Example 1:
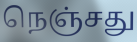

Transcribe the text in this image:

நெஞ்சது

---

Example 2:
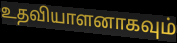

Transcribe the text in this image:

உதவியாளனாகவும்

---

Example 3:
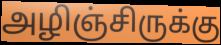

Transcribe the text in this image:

அழிஞ்சிருக்கு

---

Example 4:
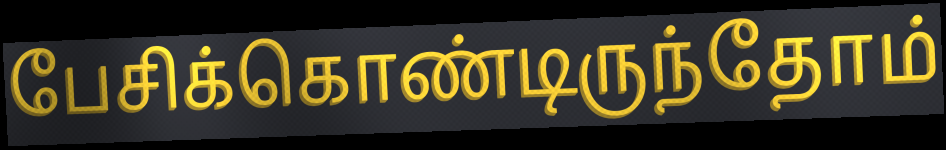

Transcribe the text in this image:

பேசிக்கொண்டிருந்தோம்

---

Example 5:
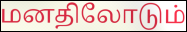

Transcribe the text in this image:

மனதிலோடும்